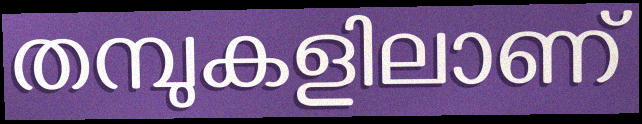
തമ്പുകളിലാണ്